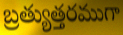
బ్రత్యుత్తరముగా